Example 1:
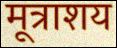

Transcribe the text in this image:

मूत्राशय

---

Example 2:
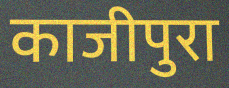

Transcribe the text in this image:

काजीपुरा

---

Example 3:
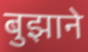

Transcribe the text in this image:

बुझाने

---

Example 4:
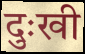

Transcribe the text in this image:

दुःखी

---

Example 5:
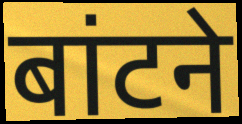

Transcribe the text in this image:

बांटने